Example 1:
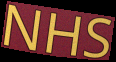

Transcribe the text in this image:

NHS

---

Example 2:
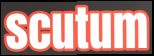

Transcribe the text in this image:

scutum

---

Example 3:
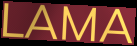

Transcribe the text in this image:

LAMA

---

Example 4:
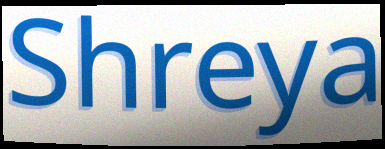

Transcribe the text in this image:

Shreya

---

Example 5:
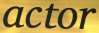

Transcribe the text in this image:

actor